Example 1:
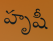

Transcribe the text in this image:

హృషీ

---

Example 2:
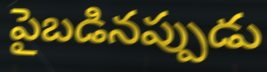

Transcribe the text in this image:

పైబడినప్పుడు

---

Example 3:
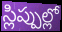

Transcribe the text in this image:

స్లిప్పుల్లో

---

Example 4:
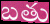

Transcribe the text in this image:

బతు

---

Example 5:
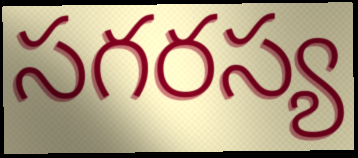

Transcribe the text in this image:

సగరస్య